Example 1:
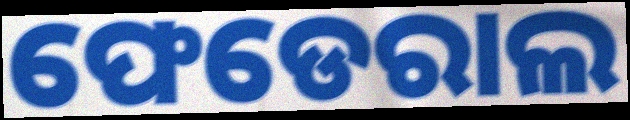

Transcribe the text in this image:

ଫେଡେରାଲ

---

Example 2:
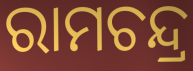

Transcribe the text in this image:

ରାମଚନ୍ଦ୍ର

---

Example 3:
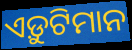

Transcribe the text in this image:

ଏଡ଼ୁଟିମାନ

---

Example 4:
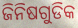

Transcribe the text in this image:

ଜିନିଷଗୁଡିକ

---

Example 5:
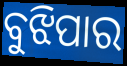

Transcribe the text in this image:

ବୁଝିପାର